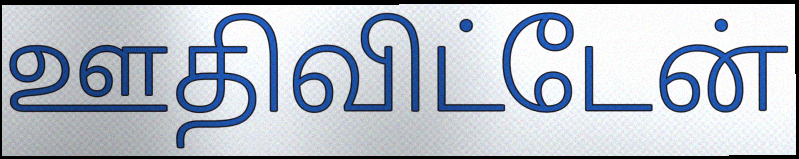
ஊதிவிட்டேன்